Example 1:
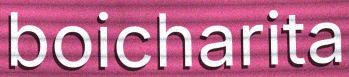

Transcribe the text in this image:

boicharita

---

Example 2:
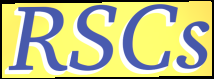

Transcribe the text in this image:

RSCs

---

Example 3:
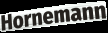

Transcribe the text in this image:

Hornemann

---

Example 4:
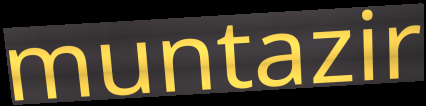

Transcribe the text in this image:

muntazir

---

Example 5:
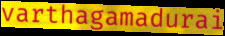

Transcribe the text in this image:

varthagamadurai